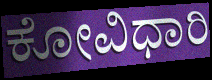
ಕೋವಿಧಾರಿ